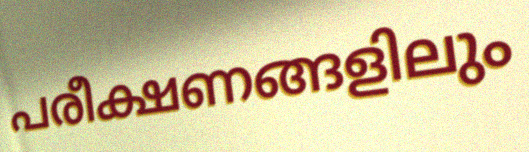
പരീക്ഷണങ്ങളിലും